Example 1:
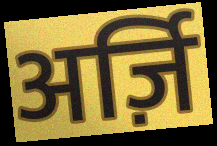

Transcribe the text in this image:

अर्ज़ि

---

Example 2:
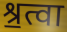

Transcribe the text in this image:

श्र॒त्वा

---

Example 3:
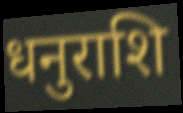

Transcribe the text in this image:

धनुराशि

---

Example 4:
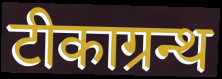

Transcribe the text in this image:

टीकाग्रन्थ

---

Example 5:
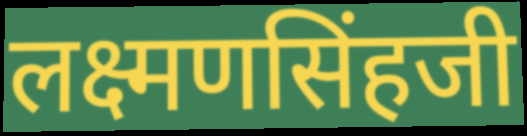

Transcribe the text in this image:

लक्ष्मणसिंहजी